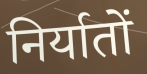
निर्यातों